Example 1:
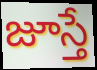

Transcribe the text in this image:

జూస్తే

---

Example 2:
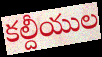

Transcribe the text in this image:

కల్దీయుల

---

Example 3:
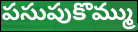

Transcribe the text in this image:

పసుపుకొమ్ము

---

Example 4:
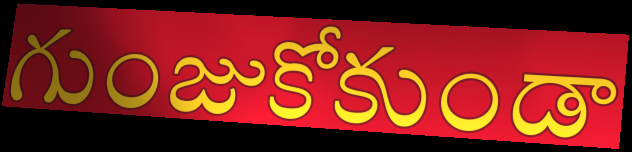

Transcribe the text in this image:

గుంజుకోకుండా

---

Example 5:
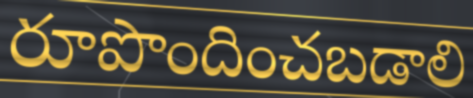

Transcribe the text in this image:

రూపొందించబడాలి